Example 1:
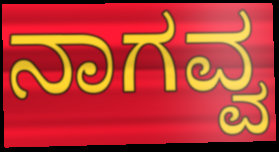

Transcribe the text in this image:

ನಾಗವ್ವ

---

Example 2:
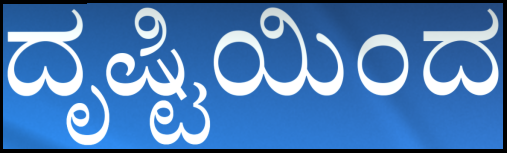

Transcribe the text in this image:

ದೃಷ್ಟಿಯಿಂದ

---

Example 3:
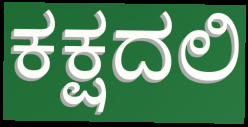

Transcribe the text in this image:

ಕಕ್ಷದಲಿ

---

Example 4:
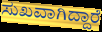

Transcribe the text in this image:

ಸುಖವಾಗಿದ್ದಾರೆ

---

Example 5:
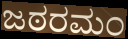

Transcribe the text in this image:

ಜಠರಮಂ